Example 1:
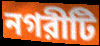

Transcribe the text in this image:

নগরীটি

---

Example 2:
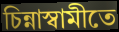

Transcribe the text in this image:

চিন্নাস্বামীতে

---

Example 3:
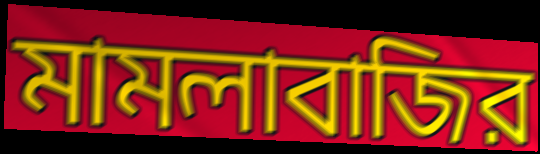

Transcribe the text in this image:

মামলাবাজির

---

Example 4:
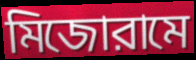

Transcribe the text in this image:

মিজোরামে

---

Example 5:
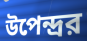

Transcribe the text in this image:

উপেন্দ্রর